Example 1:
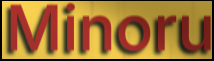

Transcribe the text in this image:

Minoru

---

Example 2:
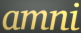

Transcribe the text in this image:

amni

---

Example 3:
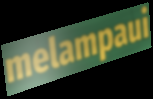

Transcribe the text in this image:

melampaui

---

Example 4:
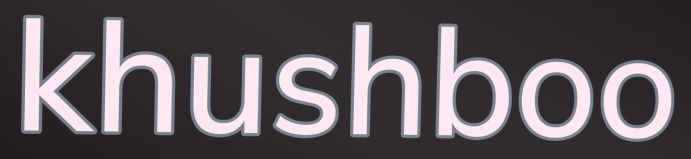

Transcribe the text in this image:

khushboo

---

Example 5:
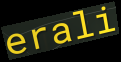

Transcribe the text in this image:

erali